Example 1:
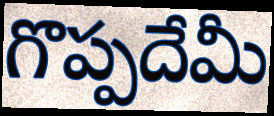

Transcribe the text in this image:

గొప్పదేమీ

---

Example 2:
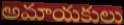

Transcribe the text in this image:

అమాయకులు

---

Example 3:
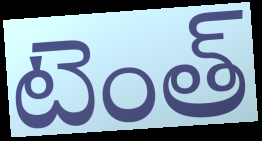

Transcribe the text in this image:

టెంత్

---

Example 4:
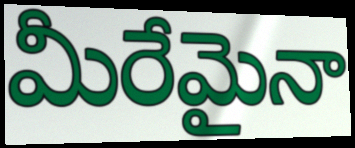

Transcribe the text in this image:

మీరేమైనా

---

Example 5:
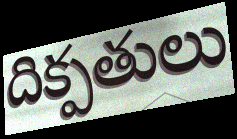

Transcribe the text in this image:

దిక్పతులు